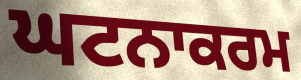
ਘਟਨਾਕਰਮ